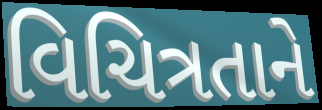
વિચિત્રતાને